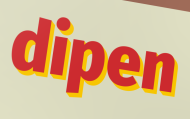
dipen